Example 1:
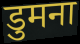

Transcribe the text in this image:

डुमना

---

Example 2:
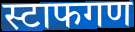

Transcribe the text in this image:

स्टाफगण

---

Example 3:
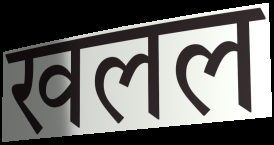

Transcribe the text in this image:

खलल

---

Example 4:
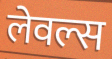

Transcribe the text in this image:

लेवल्स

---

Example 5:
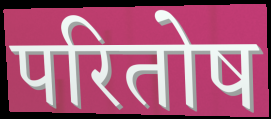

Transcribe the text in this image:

परितोष